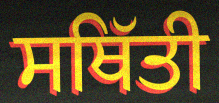
ਸਥਿੱਤੀ